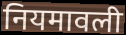
नियमावली